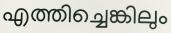
എത്തിച്ചെങ്കിലും